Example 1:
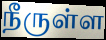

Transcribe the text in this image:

நீருள்ள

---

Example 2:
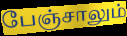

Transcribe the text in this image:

பேஞ்சாலும்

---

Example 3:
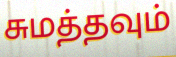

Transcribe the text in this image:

சுமத்தவும்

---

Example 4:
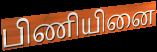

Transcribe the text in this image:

பிணியினை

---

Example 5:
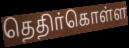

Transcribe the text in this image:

தெதிர்கொள்ள